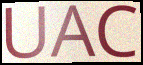
UAC